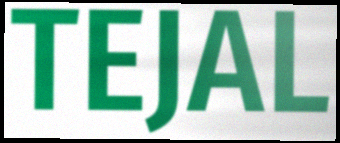
TEJAL